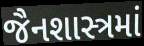
જૈનશાસ્ત્રમાં